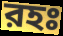
রহঃ